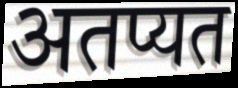
अतप्यत